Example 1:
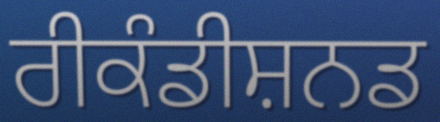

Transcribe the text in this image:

ਰੀਕੰਡੀਸ਼ਨਡ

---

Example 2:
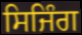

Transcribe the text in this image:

ਸਿਜਿੰਗ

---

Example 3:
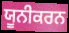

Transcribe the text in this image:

ਯੂਨੀਕਰਨ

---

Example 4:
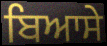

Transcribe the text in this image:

ਬਿਆਸੇ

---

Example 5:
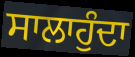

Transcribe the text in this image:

ਸਾਲਾਹੁੰਦਾ